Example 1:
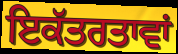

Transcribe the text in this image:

ਇਕੱਤਰਤਾਵਾਂ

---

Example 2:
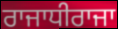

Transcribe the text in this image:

ਰਾਜਾਧੀਰਾਜਾ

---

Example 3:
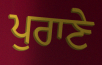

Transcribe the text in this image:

ਪੁਰਾਣੇ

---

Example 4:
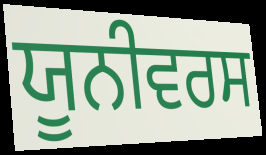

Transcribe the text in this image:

ਯੂਨੀਵਰਸ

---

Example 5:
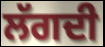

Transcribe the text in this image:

ਲੱਗਦੀ